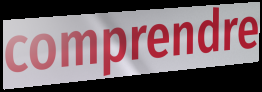
comprendre